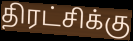
திரட்சிக்கு